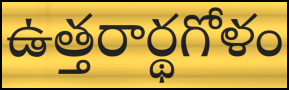
ఉత్తరార్థగోళం